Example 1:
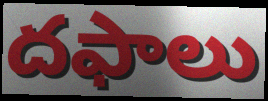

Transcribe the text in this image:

దఫాలు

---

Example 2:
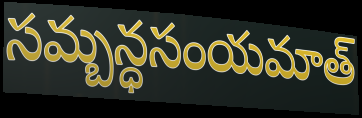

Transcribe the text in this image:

సమ్బన్ధసంయమాత్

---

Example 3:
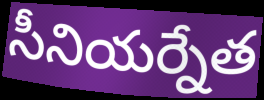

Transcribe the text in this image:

సీనియర్నేత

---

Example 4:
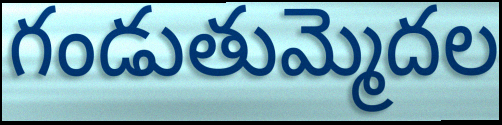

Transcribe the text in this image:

గండుతుమ్మెదల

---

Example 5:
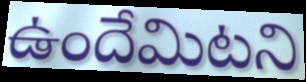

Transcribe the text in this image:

ఉందేమిటని